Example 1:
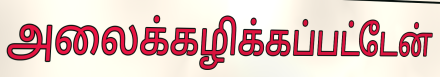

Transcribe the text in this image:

அலைக்கழிக்கப்பட்டேன்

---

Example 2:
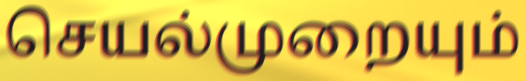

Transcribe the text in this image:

செயல்முறையும்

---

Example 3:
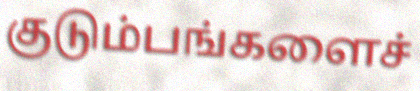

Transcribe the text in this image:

குடும்பங்களைச்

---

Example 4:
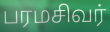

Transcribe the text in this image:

பரமசிவர்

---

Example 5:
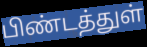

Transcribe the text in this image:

பிண்டத்துள்